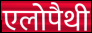
एलोपैथी